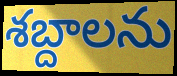
శబ్దాలను